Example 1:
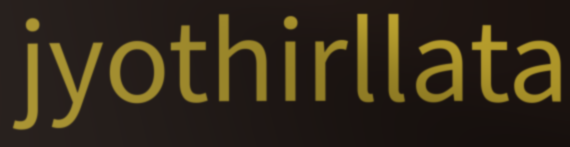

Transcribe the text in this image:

jyothirllata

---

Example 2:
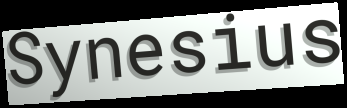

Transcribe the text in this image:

Synesius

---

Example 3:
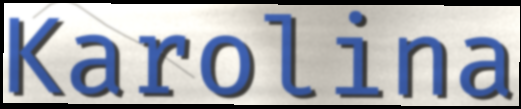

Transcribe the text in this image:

Karolina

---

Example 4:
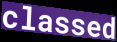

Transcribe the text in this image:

classed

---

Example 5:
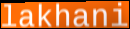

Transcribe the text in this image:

lakhani